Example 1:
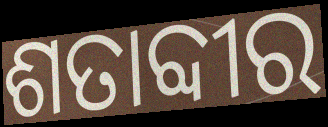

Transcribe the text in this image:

ଶତାବ୍ଦୀର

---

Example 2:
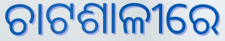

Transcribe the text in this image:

ଚାଟଶାଳୀରେ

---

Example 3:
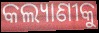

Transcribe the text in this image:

କଲ୍ୟାଣୀକୁ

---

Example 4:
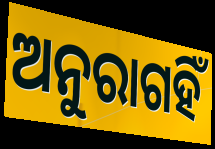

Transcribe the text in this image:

ଅନୁରାଗହିଁ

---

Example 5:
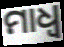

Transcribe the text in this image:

ମାଧ୍ଵ